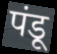
पंडू